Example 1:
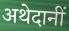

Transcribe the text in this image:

अथेदानीं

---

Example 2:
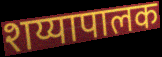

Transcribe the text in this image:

शय्यापालक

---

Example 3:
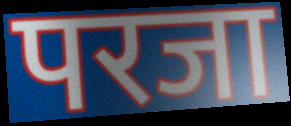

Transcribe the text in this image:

परजा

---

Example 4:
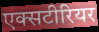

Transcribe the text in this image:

एक्‍सटीरियर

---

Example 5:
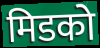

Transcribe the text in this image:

मिडको